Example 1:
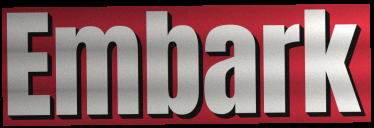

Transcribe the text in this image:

Embark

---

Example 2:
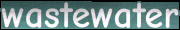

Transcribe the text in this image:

wastewater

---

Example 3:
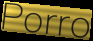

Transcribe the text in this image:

Porro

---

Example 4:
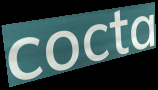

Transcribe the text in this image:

cocta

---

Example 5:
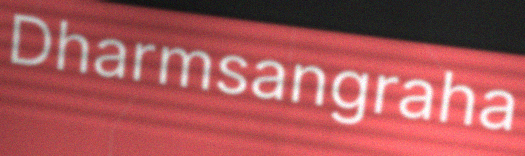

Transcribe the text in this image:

Dharmsangraha